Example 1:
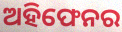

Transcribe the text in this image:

ଅହିଫେନର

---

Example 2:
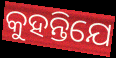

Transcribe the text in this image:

କୁହନ୍ତିଯେ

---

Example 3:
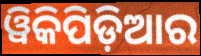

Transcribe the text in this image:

ୱିକିପିଡ଼ିଆର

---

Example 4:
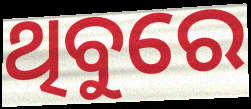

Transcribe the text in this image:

ଥିବୁରେ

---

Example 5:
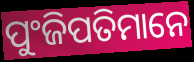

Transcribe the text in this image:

ପୁଂଜିପତିମାନେ